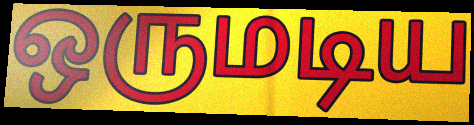
ஒருமடிய